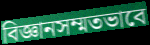
বিজ্ঞানসম্মতভাবে